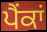
ਪੈਂਕਾਂ